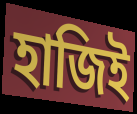
হাজিই